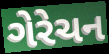
ગેરેચન